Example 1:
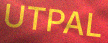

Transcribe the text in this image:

UTPAL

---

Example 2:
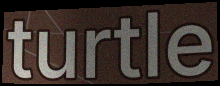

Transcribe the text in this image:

turtle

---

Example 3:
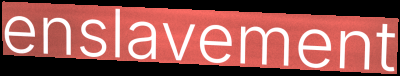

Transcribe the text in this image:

enslavement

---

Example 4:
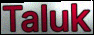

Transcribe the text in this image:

Taluk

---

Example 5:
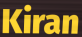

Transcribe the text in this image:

Kiran